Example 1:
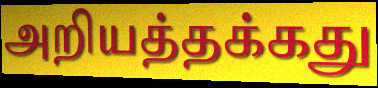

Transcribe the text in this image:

அறியத்தக்கது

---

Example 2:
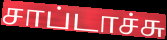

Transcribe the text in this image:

சாப்டாச்சு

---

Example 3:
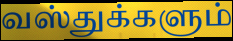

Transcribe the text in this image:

வஸ்துக்களும்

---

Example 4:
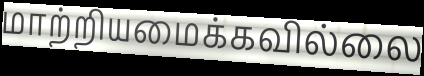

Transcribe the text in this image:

மாற்றியமைக்கவில்லை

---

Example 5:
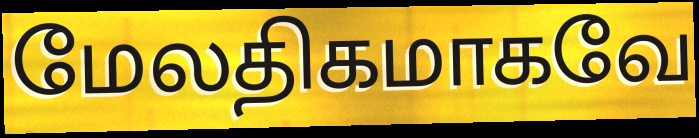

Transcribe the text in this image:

மேலதிகமாகவே